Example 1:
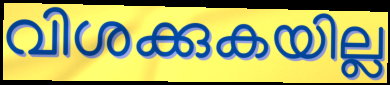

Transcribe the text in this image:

വിശക്കുകയില്ല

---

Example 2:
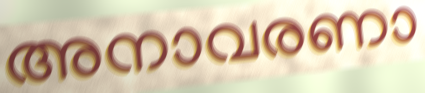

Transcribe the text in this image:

അനാവരണാ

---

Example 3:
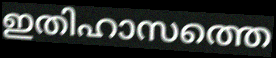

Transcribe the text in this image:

ഇതിഹാസത്തെ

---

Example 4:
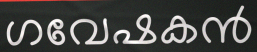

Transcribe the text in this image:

ഗവേഷകൻ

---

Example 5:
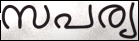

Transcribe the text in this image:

സപര്യ